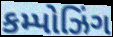
કમ્પોઝિંગ